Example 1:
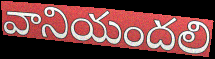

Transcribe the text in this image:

వానియందలి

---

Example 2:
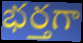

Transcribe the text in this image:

భర్తగా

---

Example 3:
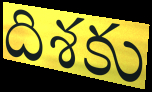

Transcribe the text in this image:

దిశకు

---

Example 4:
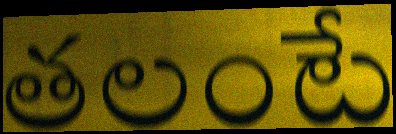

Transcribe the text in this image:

తలంటే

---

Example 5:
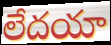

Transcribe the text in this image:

లేదయా